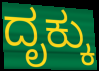
ದೃಕ್ಕು